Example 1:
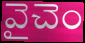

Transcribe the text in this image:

వైచెం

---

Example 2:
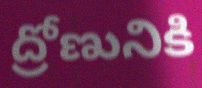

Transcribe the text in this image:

ద్రోణునికి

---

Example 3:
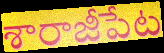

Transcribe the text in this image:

శారాజీపేట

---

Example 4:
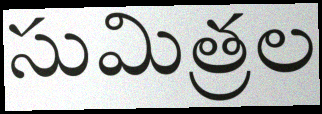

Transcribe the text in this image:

సుమిత్రల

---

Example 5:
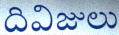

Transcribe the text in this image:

దివిజులు